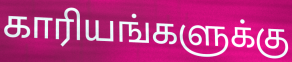
காரியங்களுக்கு